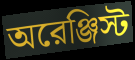
অরেঞ্জিস্ট